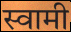
स्‍वामी